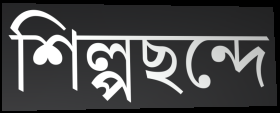
শিল্পছন্দে